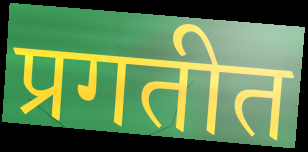
प्रगतीत